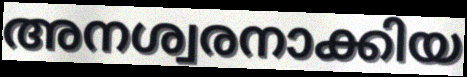
അനശ്വരനാക്കിയ